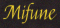
Mifune